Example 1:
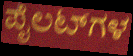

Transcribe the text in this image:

ಪೈಲಟ್‌ಗಳ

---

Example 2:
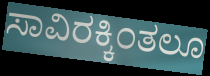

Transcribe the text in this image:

ಸಾವಿರಕ್ಕಿಂತಲೂ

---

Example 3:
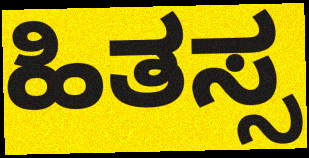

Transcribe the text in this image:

ಹಿತಸ್ಸ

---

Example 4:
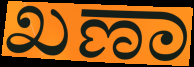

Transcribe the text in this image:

ಖಣಾ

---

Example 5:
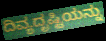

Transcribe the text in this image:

ದಿವ್ಯದೃಷ್ಟಿಯನ್ನು